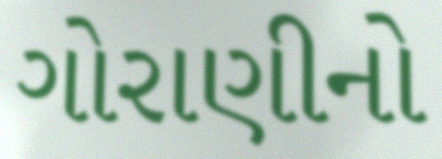
ગોરાણીનો